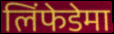
लिंफेडेमा